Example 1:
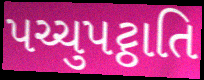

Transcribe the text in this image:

પચ્ચુપટ્ઠાતિ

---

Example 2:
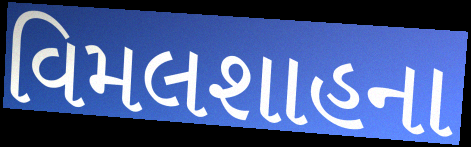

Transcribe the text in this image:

વિમલશાહના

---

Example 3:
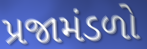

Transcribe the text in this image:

પ્રજામંડળો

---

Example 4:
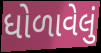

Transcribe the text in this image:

ધોળાવેલું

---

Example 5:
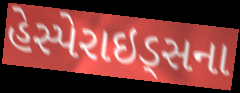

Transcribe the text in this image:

હેસ્પેરાઇડ્સના